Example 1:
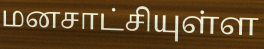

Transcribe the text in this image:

மனசாட்சியுள்ள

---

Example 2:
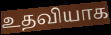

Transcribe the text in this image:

உதவியாக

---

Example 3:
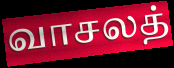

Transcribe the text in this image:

வாசலத்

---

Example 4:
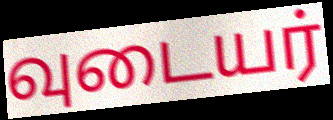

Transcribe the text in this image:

வுடையர்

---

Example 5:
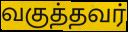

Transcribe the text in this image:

வகுத்தவர்